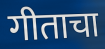
गीताचा